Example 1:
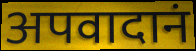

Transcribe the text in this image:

अपवादानं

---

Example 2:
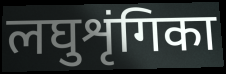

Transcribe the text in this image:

लघुशृंगिका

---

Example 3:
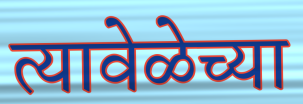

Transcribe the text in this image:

त्यावेळेच्या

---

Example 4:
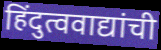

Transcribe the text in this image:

हिंदुत्ववाद्यांची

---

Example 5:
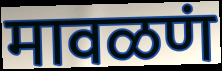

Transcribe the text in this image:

मावळणं